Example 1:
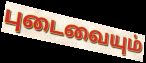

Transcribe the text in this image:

புடைவையும்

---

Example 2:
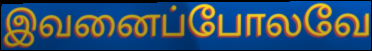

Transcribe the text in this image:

இவனைப்போலவே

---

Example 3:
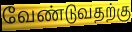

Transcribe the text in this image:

வேண்டுவதற்கு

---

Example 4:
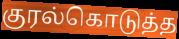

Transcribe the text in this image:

குரல்கொடுத்த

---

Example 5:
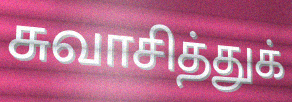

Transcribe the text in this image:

சுவாசித்துக்